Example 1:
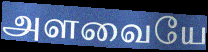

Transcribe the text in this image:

அளவையே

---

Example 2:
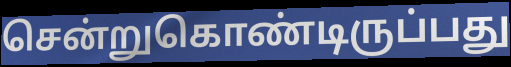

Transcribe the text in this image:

சென்றுகொண்டிருப்பது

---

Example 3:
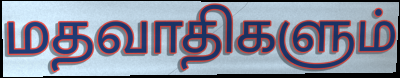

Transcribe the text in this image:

மதவாதிகளும்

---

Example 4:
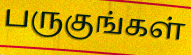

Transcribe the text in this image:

பருகுங்கள்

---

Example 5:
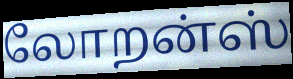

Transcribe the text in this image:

லோறன்ஸ்